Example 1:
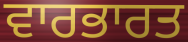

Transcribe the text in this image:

ਵਾਰਭਾਰਤ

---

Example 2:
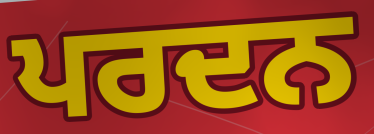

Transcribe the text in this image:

ਪਰਦਨ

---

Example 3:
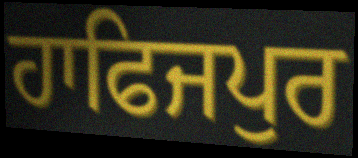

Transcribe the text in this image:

ਹਾਫਿਜਪੁਰ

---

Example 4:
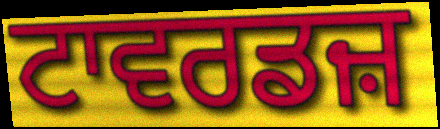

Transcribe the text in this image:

ਟਾਵਰਡਜ਼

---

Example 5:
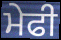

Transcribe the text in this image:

ਮੇਫੀ